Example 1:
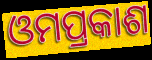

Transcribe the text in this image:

ଓମପ୍ରକାଶ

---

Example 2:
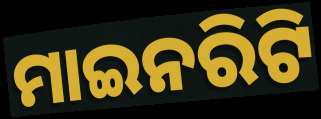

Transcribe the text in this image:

ମାଇନରିଟି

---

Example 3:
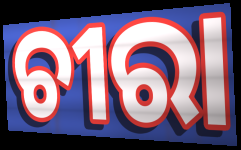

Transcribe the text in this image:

ଚୀରା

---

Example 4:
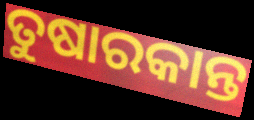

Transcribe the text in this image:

ତୁଷାରକାନ୍ତ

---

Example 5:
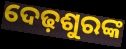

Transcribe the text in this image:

ଦେଢ଼ଶୁରଙ୍କ